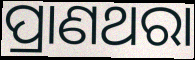
ପ୍ରାଣଥରା